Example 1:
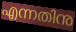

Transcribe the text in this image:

എന്നതിനു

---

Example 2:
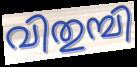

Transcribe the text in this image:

വിതുമ്പി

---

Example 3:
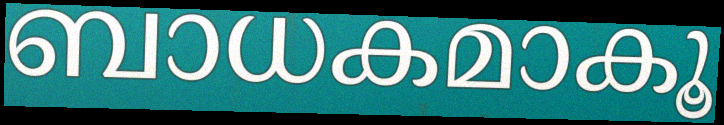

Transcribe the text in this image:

ബാധകമാകൂ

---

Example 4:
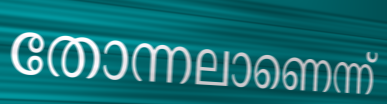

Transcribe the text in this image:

തോന്നലാണെന്ന്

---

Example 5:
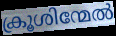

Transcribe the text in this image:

ക്രൂശിന്മേൽ